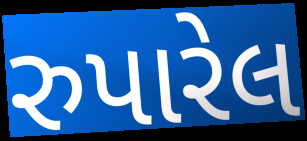
રુપારેલ